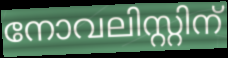
നോവലിസ്റ്റിന്